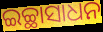
ଇଚ୍ଛାସାଧନ